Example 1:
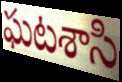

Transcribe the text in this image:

ఘటశాసి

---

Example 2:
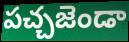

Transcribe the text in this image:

పచ్చజెండా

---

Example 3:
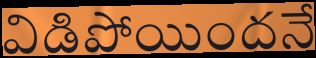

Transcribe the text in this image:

విడిపోయిందనే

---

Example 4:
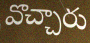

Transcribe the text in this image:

వొచ్చారు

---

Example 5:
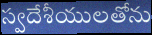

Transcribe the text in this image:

స్వదేశీయులతోను